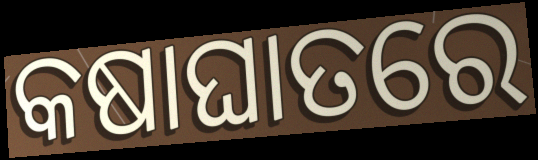
କଷାଘାତରେ